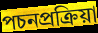
পচনপ্রক্রিয়া